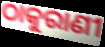
ଠାକୁରାଣୀ